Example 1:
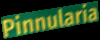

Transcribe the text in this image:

Pinnularia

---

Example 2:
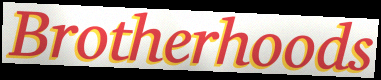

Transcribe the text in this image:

Brotherhoods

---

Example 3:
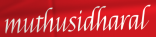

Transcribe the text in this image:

muthusidharal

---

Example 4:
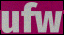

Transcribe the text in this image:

ufw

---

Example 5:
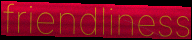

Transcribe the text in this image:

friendliness